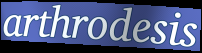
arthrodesis